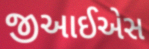
જીઆઈએસ